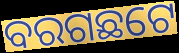
ବରଗଛଟେ